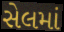
સેલમાં